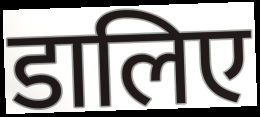
डालिए